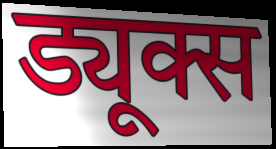
ड्यूक्स